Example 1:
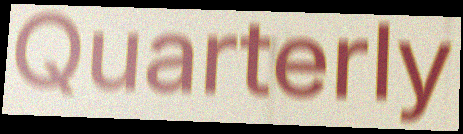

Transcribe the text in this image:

Quarterly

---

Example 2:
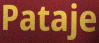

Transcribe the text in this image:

Pataje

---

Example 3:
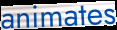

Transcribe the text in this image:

animates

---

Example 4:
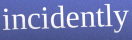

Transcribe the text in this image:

incidently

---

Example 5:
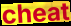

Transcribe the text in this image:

cheat